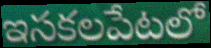
ఇసకలపేటలో